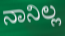
ನಾನಿಲ್ಲ